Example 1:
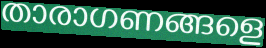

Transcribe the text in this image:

താരാഗണങ്ങളെ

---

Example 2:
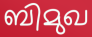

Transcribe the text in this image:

ബിമുഖ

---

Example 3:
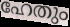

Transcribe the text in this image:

ഹേതും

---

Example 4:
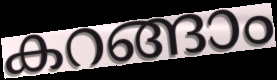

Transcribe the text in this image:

കറങ്ങാം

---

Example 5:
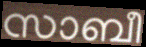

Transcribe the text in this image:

സാബീ